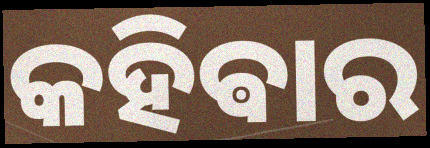
କହିଵାର